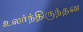
உலர்ந்திருந்தன